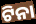
ଟିନା